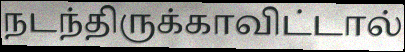
நடந்திருக்காவிட்டால்